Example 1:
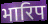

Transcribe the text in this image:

भारिप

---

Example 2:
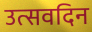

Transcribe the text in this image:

उत्सवदिन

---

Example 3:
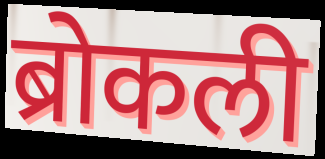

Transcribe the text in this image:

ब्रोकली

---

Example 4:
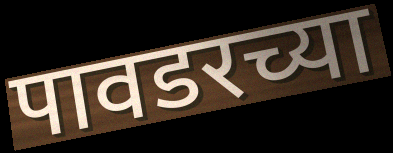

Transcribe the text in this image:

पावडरच्या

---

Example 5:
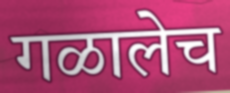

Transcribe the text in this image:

गळालेच